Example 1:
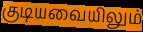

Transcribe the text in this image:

குடியவையிலும்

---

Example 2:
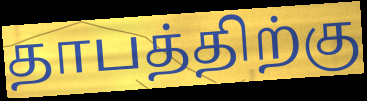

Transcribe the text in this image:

தாபத்திற்கு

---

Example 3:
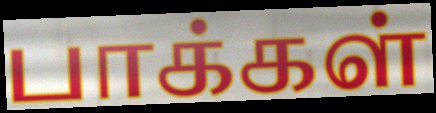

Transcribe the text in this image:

பாக்கள்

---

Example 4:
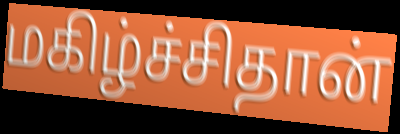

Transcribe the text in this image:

மகிழ்ச்சிதான்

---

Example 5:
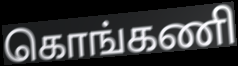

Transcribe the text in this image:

கொங்கணி